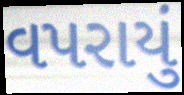
વપરાયું